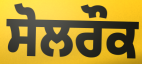
ਸੋਲਰੌਕ